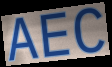
AEC